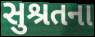
સુશ્રતના